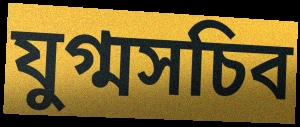
যুগ্মসচিব